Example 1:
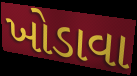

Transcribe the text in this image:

ખોડાવા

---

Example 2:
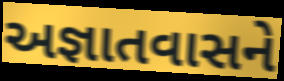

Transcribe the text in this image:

અજ્ઞાતવાસને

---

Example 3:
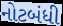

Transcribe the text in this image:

નોટબંધી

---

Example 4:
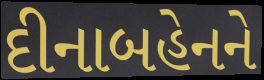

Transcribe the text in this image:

દીનાબહેનને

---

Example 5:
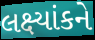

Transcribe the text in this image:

લક્ષ્યાંકને